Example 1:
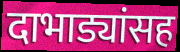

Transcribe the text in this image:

दाभाड्यांसह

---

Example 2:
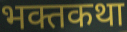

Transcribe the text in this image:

भक्तकथा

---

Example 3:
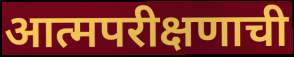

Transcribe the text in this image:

आत्मपरीक्षणाची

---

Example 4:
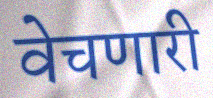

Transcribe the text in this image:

वेचणारी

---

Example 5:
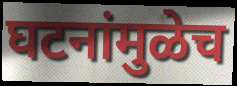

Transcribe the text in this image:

घटनांमुळेच